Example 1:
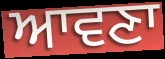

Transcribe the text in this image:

ਆਵਣਾ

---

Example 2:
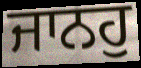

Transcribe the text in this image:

ਜਾਨਹੁ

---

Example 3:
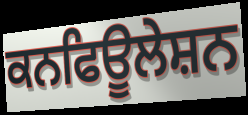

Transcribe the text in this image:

ਕਨਫਿਊਲੇਸ਼ਨ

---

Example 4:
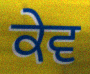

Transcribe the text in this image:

ਕੇਵ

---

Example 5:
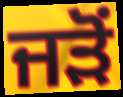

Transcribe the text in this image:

ਜਡ਼ੋਂ